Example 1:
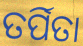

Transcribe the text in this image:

ତର୍ପିତା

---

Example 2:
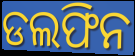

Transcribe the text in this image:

ଡଲଫିନ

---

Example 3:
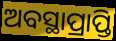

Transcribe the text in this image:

ଅବସ୍ଥାପ୍ରାପ୍ତି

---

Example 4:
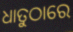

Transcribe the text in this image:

ଧାତୁଠାରେ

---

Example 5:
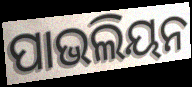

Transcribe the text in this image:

ପାଭଲିୟନ